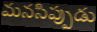
మనసిప్పుడు